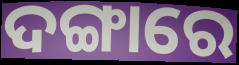
ଦଙ୍ଗାରେ